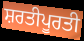
ਸ਼ਰਤੀਪੂਰਤੀ